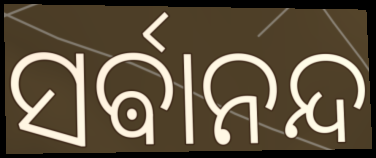
ସର୍ଵାନନ୍ଦ